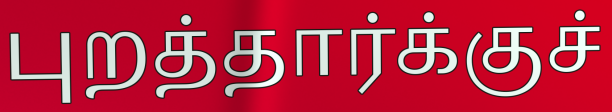
புறத்தார்க்குச்